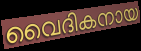
വൈദികനായ